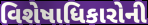
વિશેષાધિકારોની